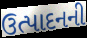
ઉત્પાદનની